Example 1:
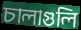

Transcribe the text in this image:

চালাগুলি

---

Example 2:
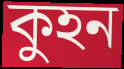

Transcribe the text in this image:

কুহন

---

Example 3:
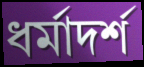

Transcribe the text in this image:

ধর্মাদর্শ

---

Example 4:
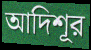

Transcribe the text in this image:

আদিশূর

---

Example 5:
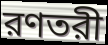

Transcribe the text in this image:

রণতরী